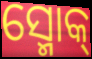
ସ୍ମୋକ୍